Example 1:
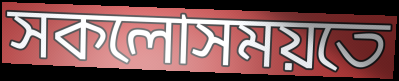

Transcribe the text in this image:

সকলোসময়তে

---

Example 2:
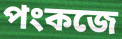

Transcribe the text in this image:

পংকজে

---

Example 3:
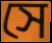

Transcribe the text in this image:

সে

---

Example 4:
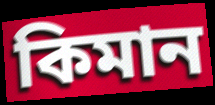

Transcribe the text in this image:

কিমান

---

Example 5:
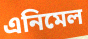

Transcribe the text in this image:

এনিমেল